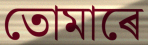
তোমাৰে